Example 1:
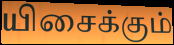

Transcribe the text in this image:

யிசைக்கும்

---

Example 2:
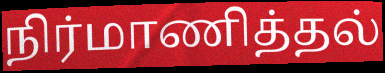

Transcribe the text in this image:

நிர்மாணித்தல்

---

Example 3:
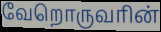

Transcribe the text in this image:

வேறொருவரின்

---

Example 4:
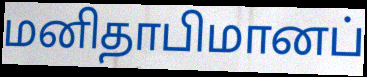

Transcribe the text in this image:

மனிதாபிமானப்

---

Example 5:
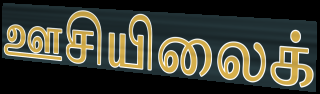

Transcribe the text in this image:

ஊசியிலைக்